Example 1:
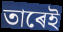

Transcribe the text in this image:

তাৰেই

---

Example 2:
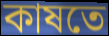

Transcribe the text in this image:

কাষতে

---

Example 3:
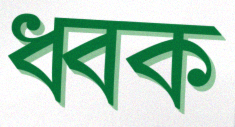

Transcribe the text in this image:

ধ্বক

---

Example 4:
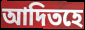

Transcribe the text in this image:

আদিতহে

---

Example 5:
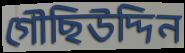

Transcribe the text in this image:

গৌছিউদ্দিন